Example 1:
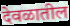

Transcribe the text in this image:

देवळातील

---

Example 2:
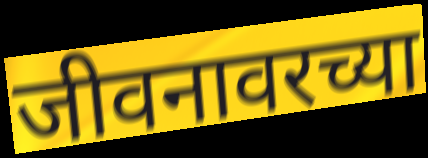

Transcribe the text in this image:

जीवनावरच्या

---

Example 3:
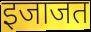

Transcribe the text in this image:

इजाजत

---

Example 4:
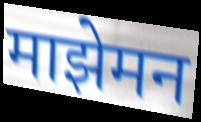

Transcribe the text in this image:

माझेमन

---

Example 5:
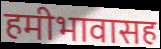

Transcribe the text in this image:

हमीभावासह